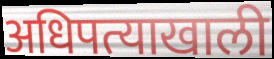
अधिपत्‍याखाली